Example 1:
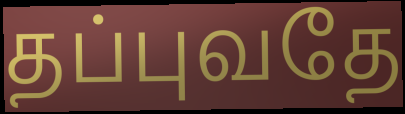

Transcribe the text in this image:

தப்புவதே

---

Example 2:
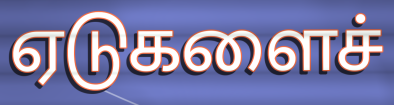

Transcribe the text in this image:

ஏடுகளைச்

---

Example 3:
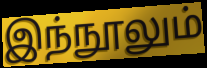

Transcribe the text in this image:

இந்நூலும்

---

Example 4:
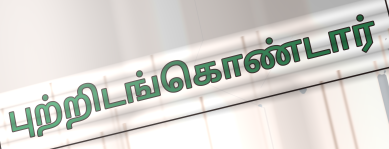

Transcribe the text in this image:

புற்றிடங்கொண்டார்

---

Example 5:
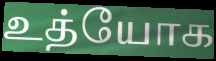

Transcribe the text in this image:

உத்யோக